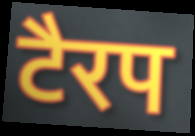
टैरप